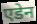
एडेन